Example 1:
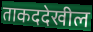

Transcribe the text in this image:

ताकददेखील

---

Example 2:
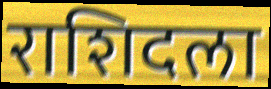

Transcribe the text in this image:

राशिदला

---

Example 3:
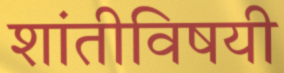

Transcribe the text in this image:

शांतीविषयी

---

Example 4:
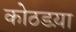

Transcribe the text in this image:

कोठडय़ा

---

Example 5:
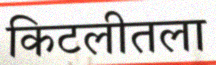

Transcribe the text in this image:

किटलीतला